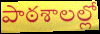
పాఠశాలల్లో